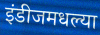
इंडीजमधल्या